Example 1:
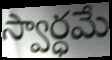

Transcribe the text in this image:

స్వార్ధమే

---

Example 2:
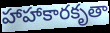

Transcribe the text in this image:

హాహాకారకృతా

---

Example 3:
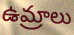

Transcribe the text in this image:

ఉమ్రాలు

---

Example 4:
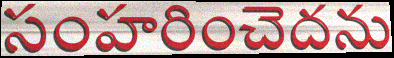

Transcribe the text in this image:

సంహరించెదను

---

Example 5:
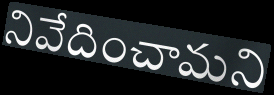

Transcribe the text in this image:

నివేదించామని